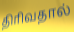
திரிவதால்